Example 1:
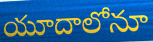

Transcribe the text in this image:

యూదాలోనూ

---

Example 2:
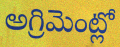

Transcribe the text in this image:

అగ్రిమెంట్లో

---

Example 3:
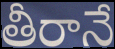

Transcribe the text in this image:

తీరానే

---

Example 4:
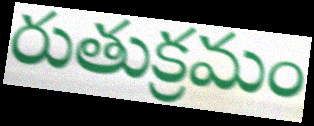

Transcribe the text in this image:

రుతుక్రమం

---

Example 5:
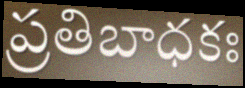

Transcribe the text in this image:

ప్రతిబాధకః